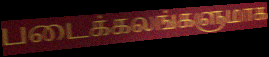
படைக்கலங்களுமாக